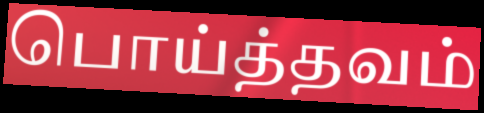
பொய்த்தவம்